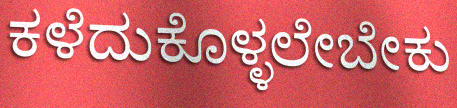
ಕಳೆದುಕೊಳ್ಳಲೇಬೇಕು